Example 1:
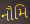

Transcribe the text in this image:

નૌમિ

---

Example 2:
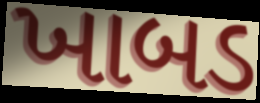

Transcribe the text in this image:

ખાબડ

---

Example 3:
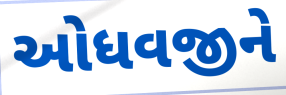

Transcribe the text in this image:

ઓધવજીને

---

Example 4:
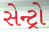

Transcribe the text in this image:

સેન્ટ્રો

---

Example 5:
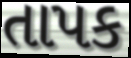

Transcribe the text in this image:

તાપક